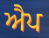
ਐਪ